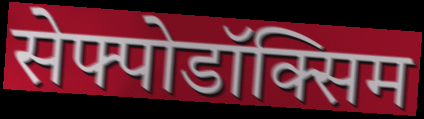
सेफ्पोडॉक्सिम